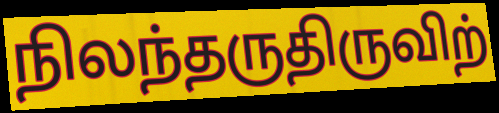
நிலந்தருதிருவிற்